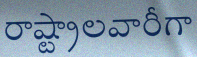
రాష్ట్రాలవారీగా